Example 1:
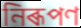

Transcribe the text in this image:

নিৰূপণ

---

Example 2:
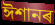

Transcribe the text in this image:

ঈশানৰ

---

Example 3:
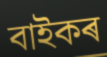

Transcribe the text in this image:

বাইকৰ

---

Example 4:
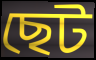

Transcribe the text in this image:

ছেট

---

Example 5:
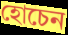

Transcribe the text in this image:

হোচেন